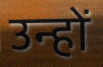
उन्हों